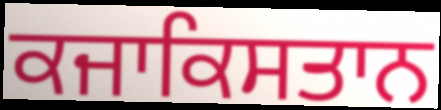
ਕਜਾਕਿਸਤਾਨ